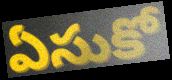
ఏసుకో